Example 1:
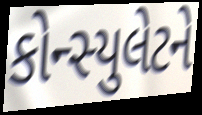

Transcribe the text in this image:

કોન્સ્યુલેટને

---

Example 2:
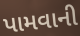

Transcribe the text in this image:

પામવાની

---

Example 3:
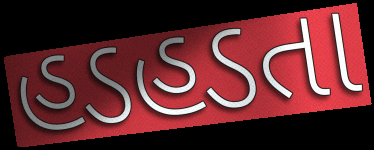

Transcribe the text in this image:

હડહડતા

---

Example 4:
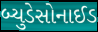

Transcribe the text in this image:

બ્યુડેસોનાઈડ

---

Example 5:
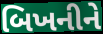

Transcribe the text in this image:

બિખનીને